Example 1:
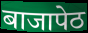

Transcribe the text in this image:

बाजापेठ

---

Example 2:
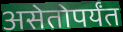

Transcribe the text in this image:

असेतोपर्यंत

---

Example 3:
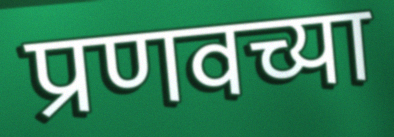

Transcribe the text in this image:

प्रणवच्या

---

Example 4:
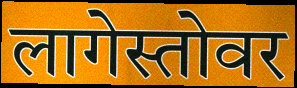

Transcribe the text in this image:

लागेस्तोवर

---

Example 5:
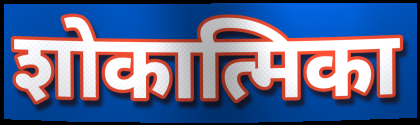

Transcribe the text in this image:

शोकात्मिका